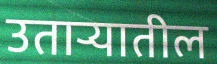
उताऱ्यातील